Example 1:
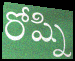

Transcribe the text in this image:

రోష్ని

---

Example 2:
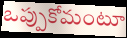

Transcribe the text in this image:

ఒప్పుకోమంటూ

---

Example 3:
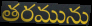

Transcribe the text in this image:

తరమును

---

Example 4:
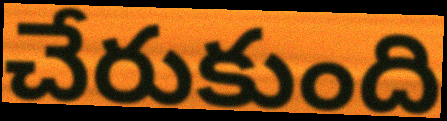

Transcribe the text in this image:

చేరుకుంది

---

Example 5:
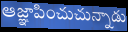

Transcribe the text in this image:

ఆజ్ఞాపించుచున్నాడు